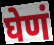
घेणं